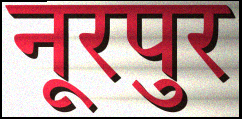
नूरपुर